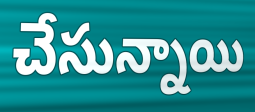
చేసున్నాయి